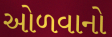
ઓળવાનો